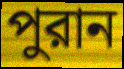
পুরান